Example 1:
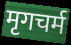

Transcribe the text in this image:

मृगचर्म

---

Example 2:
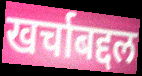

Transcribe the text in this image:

खर्चाबद्दल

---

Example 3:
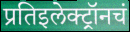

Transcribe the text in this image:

प्रतिइलेक्ट्रॉनचं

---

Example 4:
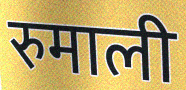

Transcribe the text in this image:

रुमाली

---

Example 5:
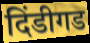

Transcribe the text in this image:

दिंडीगड